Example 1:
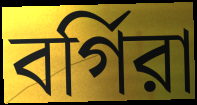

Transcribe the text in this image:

বর্গিরা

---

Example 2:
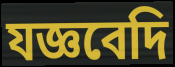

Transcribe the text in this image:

যজ্ঞবেদি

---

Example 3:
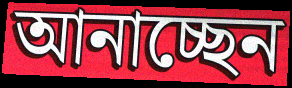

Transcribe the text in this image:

আনাচ্ছেন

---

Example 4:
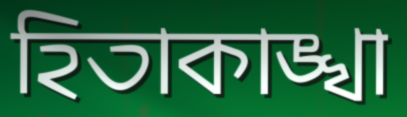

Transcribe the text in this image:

হিতাকাঙ্খা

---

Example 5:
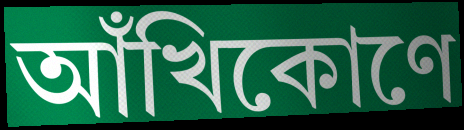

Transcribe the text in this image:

আঁখিকোণে